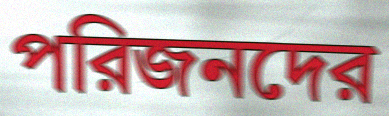
পরিজনদের